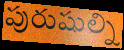
పురుషుల్ని